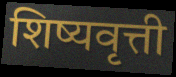
शिष्यवृत्ती